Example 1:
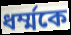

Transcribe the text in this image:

ধর্ম্মকে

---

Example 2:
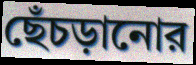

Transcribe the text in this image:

ছেঁচড়ানোর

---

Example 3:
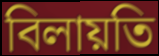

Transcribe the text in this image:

বিলায়তি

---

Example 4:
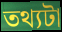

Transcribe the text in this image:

তথ্যটা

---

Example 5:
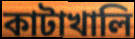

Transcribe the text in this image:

কাটাখালি